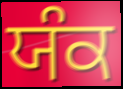
ਯੰਕ